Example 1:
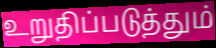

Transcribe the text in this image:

உறுதிப்படுத்தும்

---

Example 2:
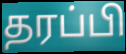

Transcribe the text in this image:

தரப்பி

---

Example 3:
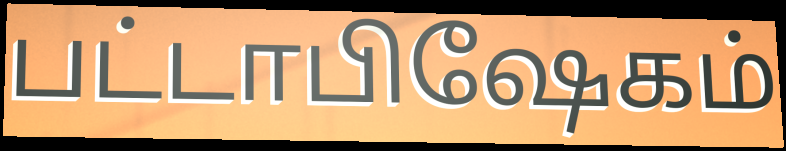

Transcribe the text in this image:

பட்டாபிஷேகம்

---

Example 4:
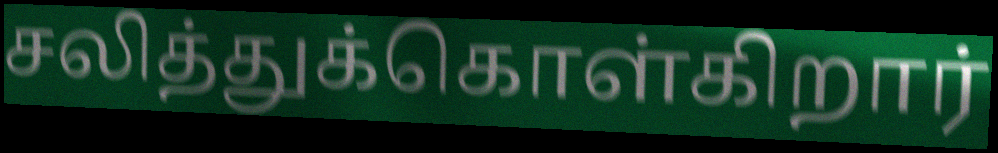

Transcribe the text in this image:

சலித்துக்கொள்கிறார்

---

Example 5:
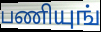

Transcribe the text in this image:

பணியுங்